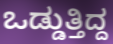
ಒಡ್ಡುತ್ತಿದ್ದ